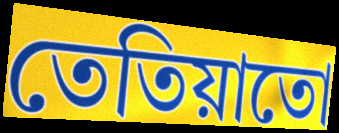
তেতিয়াতো